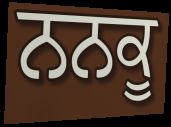
ਨਨਕੂ